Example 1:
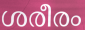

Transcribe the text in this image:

ശരീരം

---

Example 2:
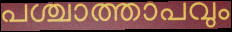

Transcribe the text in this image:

പശ്ചാത്താപവും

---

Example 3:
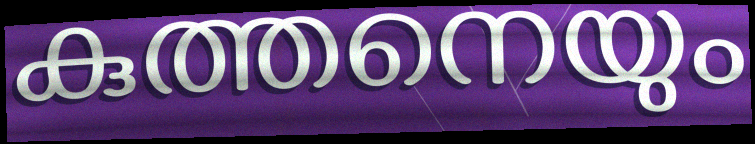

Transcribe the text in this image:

കുത്തനെയും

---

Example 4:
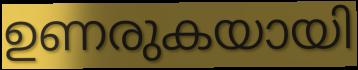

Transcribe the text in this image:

ഉണരുകയായി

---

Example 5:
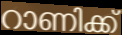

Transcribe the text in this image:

റാണിക്ക്